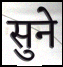
सुने